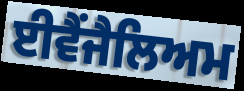
ਈਵੈਂਜੈਲਿਅਮ